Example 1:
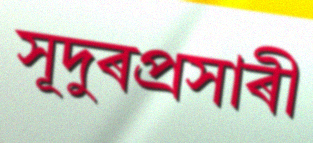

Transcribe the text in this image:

সূদুৰপ্ৰসাৰী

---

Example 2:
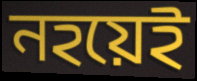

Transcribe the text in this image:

নহয়েই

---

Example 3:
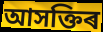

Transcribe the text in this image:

আসক্তিৰ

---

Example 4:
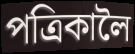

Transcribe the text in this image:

পত্ৰিকালৈ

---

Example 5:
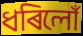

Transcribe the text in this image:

ধৰিলোঁ